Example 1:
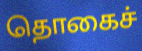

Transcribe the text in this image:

தொகைச்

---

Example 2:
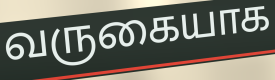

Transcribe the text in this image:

வருகையாக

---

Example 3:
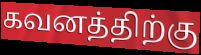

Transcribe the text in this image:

கவனத்திற்கு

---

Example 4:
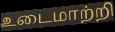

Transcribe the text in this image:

உடைமாற்றி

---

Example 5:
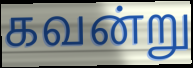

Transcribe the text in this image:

கவன்று